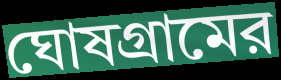
ঘোষগ্রামের